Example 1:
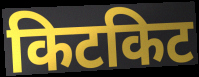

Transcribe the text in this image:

किटकिट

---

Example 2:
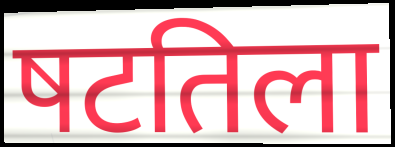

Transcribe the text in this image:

षटतिला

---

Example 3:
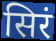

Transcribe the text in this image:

सिरं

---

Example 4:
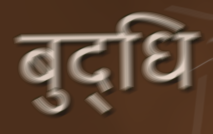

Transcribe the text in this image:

बुद्धि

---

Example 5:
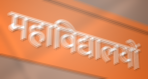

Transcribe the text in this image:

महाविद्यालयों